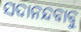
ସଦାନନ୍ଦବାବୁ